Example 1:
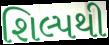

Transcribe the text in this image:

શિલ્પથી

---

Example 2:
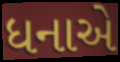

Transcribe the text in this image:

ધનાએ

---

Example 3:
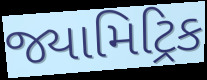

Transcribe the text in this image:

જ્યામિટ્રિક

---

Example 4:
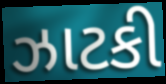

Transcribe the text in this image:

ઝાટકી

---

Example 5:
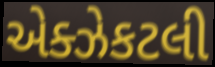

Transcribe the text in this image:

એક્ઝેકટલી